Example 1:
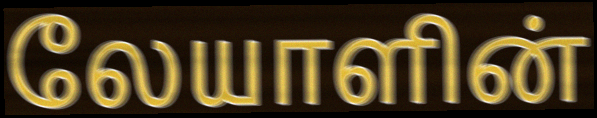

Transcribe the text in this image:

லேயாளின்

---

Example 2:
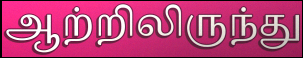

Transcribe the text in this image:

ஆற்றிலிருந்து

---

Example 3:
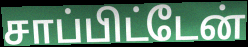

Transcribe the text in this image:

சாப்பிட்டேன்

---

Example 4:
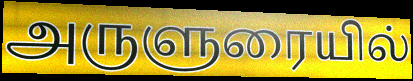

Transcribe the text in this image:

அருளுரையில்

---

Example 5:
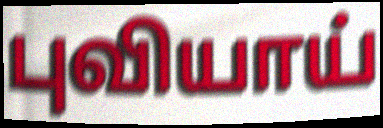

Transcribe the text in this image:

புவியாய்